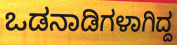
ಒಡನಾಡಿಗಳಾಗಿದ್ದ